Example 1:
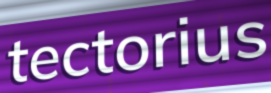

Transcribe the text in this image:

tectorius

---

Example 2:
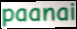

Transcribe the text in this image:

paanai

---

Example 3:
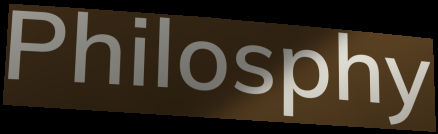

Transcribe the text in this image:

Philosphy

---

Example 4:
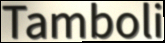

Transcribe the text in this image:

Tamboli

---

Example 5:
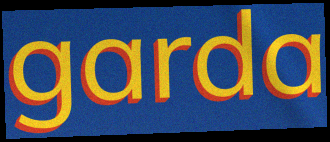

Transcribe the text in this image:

garda